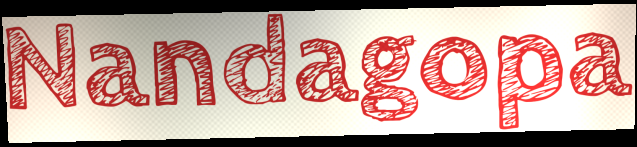
Nandagopa